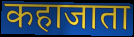
कहाजाता